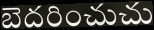
బెదరించుచు